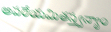
అపరేయమితస్త్వన్యాం